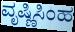
ವೃಷ್ಣಿಸಿಂಹ